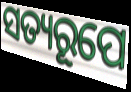
ସତ୍ୟରୂପେ